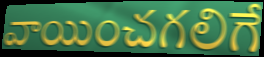
వాయించగలిగే